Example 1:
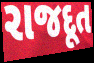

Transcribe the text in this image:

રાજદૂત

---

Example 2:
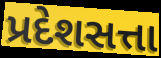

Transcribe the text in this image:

પ્રદેશસત્તા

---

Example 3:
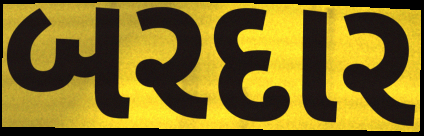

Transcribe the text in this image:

બરદાર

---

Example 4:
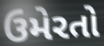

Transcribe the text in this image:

ઉમેરતો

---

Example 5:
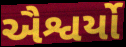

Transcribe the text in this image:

ઐશ્વર્યો